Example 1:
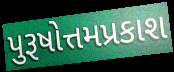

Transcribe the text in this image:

પુરૂષોત્તમપ્રકાશ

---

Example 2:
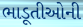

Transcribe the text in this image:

ભાડૂતીઓની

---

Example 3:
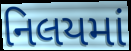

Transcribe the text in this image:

નિલયમાં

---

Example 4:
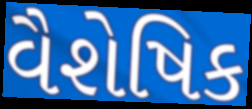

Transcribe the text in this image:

વૈશેષિક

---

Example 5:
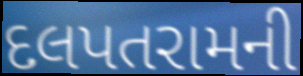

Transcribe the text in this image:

દલપતરામની